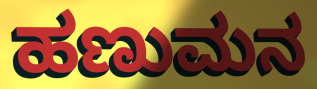
ಹಣುಮನ